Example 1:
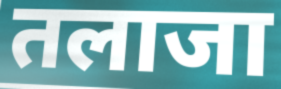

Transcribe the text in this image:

तलाजा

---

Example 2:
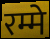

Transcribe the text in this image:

रम्मे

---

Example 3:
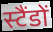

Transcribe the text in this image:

स्टैंडों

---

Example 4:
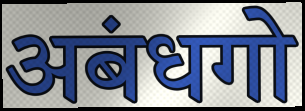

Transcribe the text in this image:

अबंधगो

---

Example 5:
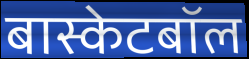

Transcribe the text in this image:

बास्‍केटबॉल